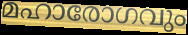
മഹാരോഗവും